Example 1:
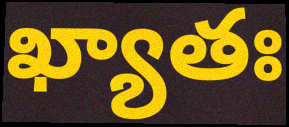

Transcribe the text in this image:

ఖ్యాతః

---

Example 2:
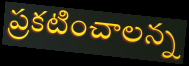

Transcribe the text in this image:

ప్రకటించాలన్న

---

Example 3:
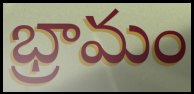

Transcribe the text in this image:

భ్రామం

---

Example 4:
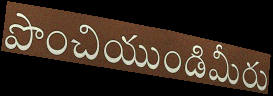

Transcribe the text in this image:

పొంచియుండిమీరు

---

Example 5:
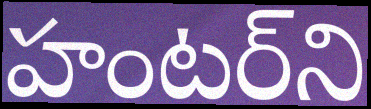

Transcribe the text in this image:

హంటర్‌ని